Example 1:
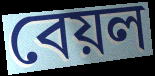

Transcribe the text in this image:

বেয়ল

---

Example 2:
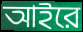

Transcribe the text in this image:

আইরে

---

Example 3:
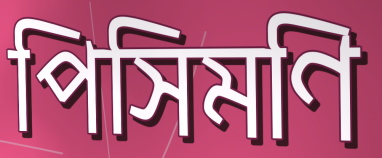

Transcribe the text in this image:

পিসিমণি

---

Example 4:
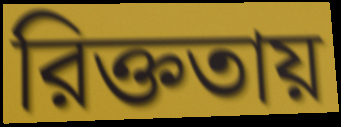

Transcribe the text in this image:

রিক্ততায়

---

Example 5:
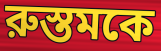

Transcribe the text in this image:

রুস্তমকে